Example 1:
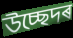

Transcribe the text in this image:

উচ্ছেদৰ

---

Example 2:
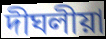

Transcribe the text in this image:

দীঘলীয়া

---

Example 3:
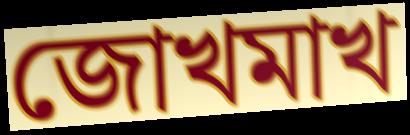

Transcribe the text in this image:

জোখমাখ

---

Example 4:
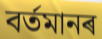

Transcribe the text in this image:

বৰ্তমানৰ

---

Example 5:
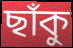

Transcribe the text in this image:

ছাঁকু